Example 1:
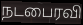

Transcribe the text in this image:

நடபைரவி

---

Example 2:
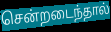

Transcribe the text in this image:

சென்றடைந்தால்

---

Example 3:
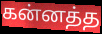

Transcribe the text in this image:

கன்னத்த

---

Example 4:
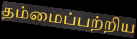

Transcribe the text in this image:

தம்மைப்பற்றிய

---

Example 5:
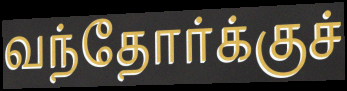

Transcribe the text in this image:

வந்தோர்க்குச்